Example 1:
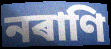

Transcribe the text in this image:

নৰাণি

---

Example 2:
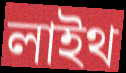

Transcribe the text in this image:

লাইথ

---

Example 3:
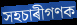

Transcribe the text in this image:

সহচাৰীগণক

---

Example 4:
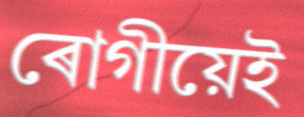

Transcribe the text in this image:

ৰোগীয়েই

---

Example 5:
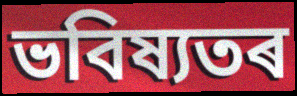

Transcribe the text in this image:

ভবিষ্যতৰ